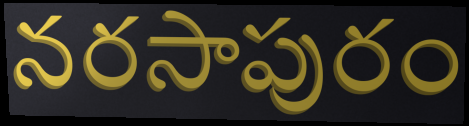
నరసాపురం